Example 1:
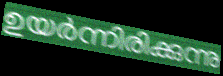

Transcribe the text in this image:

ഉയർന്നിരിക്കുന്നു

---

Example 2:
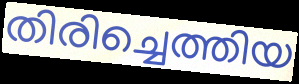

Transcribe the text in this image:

തിരിച്ചെത്തിയ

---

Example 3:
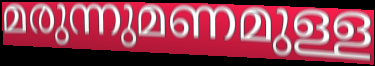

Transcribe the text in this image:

മരുന്നുമണമുള്ള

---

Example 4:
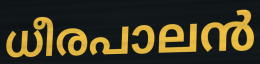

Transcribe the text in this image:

ധീരപാലൻ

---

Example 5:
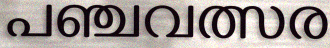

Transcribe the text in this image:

പഞ്ചവത്സര